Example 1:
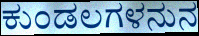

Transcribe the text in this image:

ಕುಂಡಲಗಳನುನ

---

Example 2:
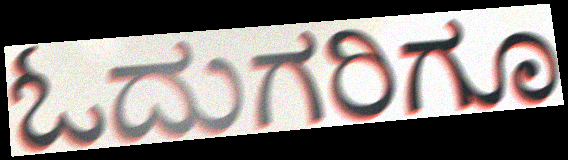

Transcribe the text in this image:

ಓದುಗರಿಗೂ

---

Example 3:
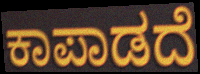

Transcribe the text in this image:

ಕಾಪಾಡದೆ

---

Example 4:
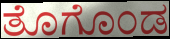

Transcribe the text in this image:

ತೊಗೊಂಡ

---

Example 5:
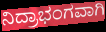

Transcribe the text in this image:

ನಿದ್ರಾಭಂಗವಾಗಿ